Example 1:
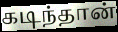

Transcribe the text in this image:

கடிந்தான்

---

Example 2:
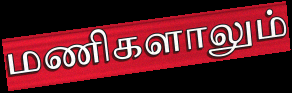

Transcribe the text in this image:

மணிகளாலும்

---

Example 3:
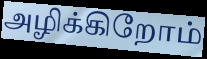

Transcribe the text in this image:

அழிக்கிறோம்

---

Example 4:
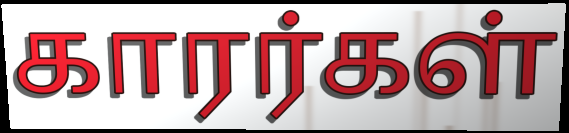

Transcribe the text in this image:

காரர்கள்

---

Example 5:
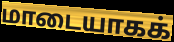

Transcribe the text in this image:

மாடையாகக்